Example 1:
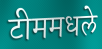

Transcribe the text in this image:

टीममधले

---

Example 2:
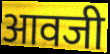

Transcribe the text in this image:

आवजी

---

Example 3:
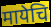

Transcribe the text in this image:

मायेचि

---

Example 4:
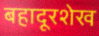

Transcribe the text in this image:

बहादूरशेख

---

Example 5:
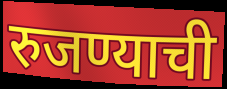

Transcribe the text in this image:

रुजण्याची